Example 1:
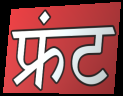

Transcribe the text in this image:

फ्रंट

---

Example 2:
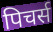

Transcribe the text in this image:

पिचर्स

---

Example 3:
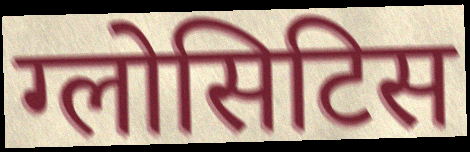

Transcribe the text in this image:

ग्लोसिटिस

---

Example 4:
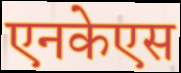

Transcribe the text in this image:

एनकेएस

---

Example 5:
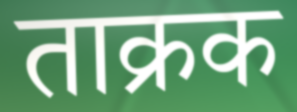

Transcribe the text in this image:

ताक्रक